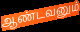
ஆண்டவனும்